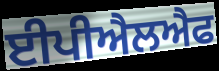
ਈਪੀਐਲਐਫ